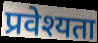
प्रवेश्यता